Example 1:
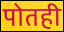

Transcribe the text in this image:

पोतही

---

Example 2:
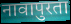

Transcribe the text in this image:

नावापुरता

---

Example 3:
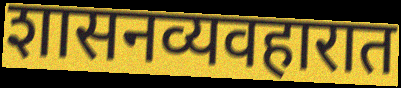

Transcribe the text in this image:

शासनव्यवहारात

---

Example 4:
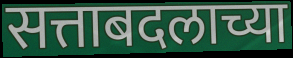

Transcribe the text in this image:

सत्ताबदलाच्या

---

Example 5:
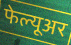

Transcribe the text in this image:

फेल्यूअर